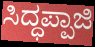
ಸಿದ್ಧಪ್ಪಾಜಿ